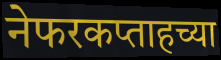
नेफरकप्ताहच्या